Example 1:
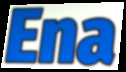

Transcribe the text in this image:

Ena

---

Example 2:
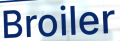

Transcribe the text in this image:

Broiler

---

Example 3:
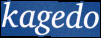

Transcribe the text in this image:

kagedo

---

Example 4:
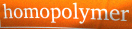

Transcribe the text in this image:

homopolymer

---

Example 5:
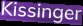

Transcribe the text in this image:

Kissinger